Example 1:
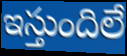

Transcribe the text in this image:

ఇస్తుందిలే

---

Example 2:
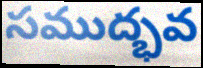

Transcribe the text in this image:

సముద్భవ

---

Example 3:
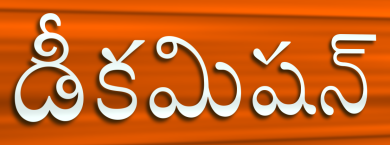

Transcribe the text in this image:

డీకమిషన్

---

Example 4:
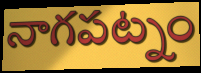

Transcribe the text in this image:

నాగపట్నం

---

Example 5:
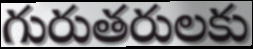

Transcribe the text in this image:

గురుతరులకు